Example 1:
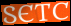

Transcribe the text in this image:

SETC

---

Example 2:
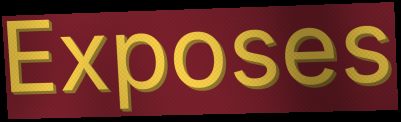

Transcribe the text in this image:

Exposes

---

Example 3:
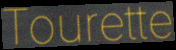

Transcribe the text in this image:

Tourette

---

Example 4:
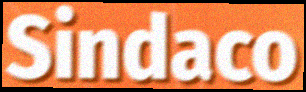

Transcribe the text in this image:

Sindaco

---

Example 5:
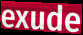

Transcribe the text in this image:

exude